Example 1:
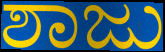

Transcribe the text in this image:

ಶಾಜು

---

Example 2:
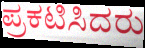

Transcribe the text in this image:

ಪ್ರಕಟಿಸಿದರು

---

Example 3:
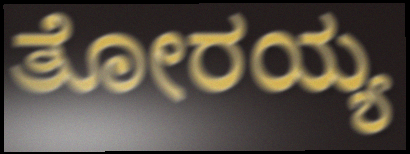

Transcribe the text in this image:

ತೋರಯ್ಯ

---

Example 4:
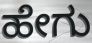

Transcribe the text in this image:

ಹೇಗು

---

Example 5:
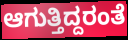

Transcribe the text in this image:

ಆಗುತ್ತಿದ್ದರಂತೆ